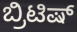
ಬ್ರಿಟಿಷ್